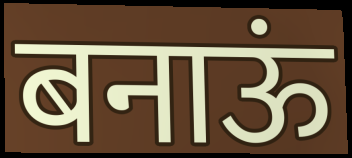
बनाऊं